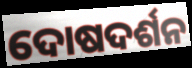
ଦୋଷଦର୍ଶନ